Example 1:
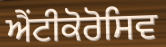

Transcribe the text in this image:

ਐਂਟੀਕੋਰੋਸਿਵ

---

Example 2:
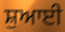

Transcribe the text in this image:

ਸ਼ੁਆਈ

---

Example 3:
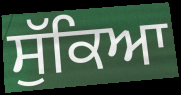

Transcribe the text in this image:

ਸੁੱਕਿਆ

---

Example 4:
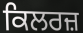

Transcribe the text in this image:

ਕਿਲਰਜ਼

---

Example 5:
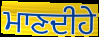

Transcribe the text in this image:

ਮਾਣਦੀਹੇ